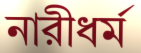
নারীধর্ম